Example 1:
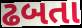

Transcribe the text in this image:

ઢબતા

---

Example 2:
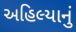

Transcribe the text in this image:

અહિલ્યાનું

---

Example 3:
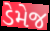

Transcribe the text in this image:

ડેમેજ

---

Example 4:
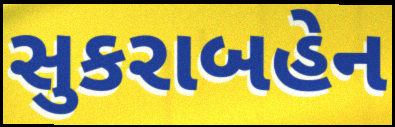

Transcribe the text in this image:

સુકરાબહેન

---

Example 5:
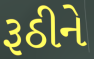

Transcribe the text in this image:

રૂઠીને